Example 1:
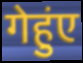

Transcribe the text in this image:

गेहुंए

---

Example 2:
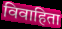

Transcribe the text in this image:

विवाहिता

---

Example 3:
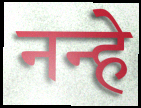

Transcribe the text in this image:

नन्हे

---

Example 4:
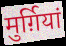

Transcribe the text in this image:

मुर्ग़ियां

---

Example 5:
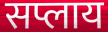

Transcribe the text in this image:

सप्लाय